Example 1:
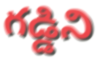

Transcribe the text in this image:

గడ్డిని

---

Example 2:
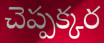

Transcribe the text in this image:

చెప్పక్కర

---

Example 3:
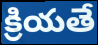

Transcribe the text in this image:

క్రియతే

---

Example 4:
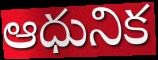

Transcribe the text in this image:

ఆధునిక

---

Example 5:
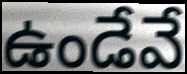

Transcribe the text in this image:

ఉండేవే